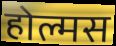
होल्मस